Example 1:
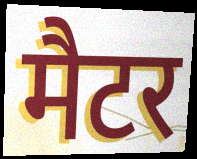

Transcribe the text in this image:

मैटर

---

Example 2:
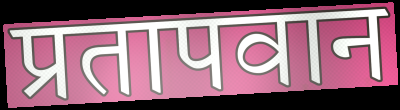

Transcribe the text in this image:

प्रतापवान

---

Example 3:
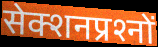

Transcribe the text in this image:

सेक्शनप्रश्नों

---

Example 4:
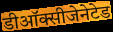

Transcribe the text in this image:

डीऑक्सीजेनेटेड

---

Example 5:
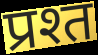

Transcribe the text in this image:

प्रश्त